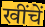
खींचें